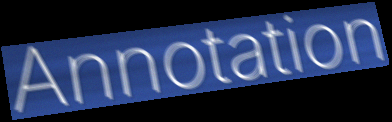
Annotation